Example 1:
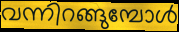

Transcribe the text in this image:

വന്നിറങ്ങുമ്പോൾ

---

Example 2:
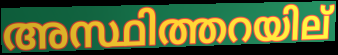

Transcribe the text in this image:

അസ്ഥിത്തറയില്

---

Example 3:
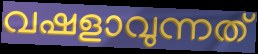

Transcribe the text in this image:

വഷളാവുന്നത്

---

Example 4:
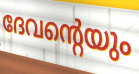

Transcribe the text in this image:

ദേവന്റെയും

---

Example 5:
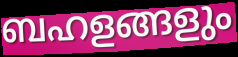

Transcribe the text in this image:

ബഹളങ്ങളും